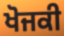
ਖੋਜਕੀ